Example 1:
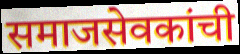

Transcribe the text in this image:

समाजसेवकांची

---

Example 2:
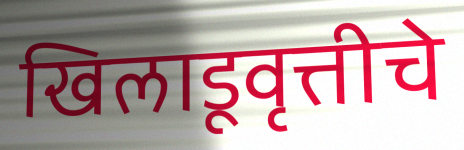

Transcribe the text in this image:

खिलाडूवृत्तीचे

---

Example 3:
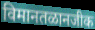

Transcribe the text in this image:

विमानतळानजीक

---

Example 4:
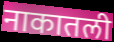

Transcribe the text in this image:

नाकातली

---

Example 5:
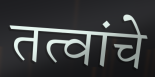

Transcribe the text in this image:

तत्वांचे